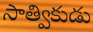
సాత్వికుడు